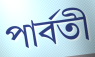
পার্বতী